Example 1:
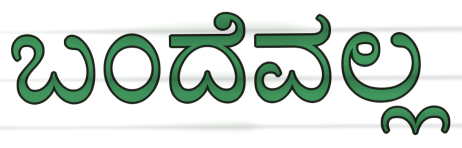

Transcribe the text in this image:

ಬಂದೆವಲ್ಲ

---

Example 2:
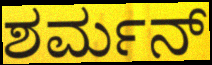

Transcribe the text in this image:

ಶರ್ಮನ್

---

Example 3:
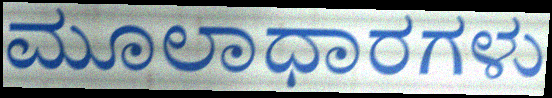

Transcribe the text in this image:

ಮೂಲಾಧಾರಗಳು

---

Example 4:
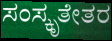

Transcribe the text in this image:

ಸಂಸ್ಕೃತೇತರ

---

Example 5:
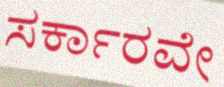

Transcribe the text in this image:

ಸರ್ಕಾರವೇ